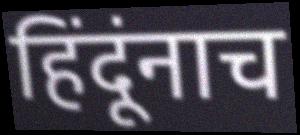
हिंदूंनाच